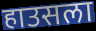
हाउसला